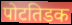
पोटतिडक